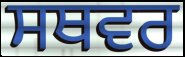
ਸਥਵਰ